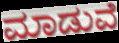
ಮಾಡುವೆ